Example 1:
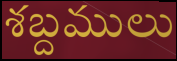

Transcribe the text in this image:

శబ్దములు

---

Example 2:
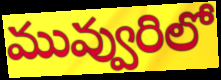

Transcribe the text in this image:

మువ్వురిలో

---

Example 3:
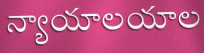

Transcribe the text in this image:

న్యాయాలయాల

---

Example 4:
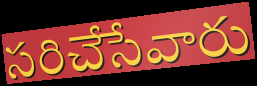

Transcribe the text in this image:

సరిచేసేవారు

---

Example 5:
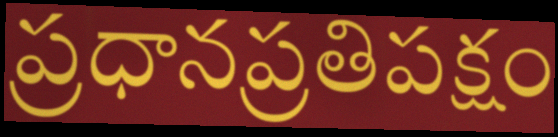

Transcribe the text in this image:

ప్రధానప్రతిపక్షం